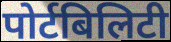
पोर्टबिलिटी